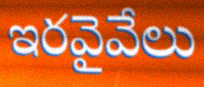
ఇరవైవేలు